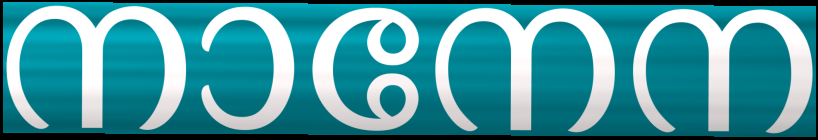
നാനേന